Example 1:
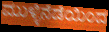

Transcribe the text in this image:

ಮುಳ್ಳಿನೆಡೆಯಿಂದ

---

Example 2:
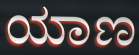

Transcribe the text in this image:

ಯಾಣ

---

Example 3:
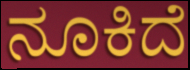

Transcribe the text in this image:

ನೂಕಿದೆ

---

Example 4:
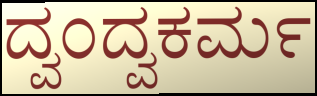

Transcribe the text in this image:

ದ್ವಂದ್ವಕರ್ಮ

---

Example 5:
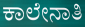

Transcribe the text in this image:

ಕಾಲೇನಾತಿ